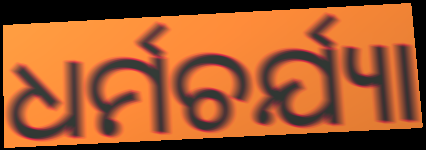
ଧର୍ମଚର୍ଯ୍ୟା